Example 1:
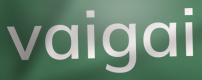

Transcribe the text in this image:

vaigai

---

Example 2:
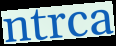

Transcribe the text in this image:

ntrca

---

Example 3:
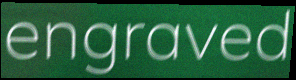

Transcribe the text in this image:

engraved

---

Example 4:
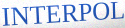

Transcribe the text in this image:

INTERPOL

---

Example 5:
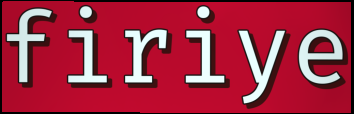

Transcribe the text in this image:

firiye